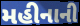
મહીનાની